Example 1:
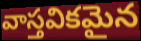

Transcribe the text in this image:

వాస్తవికమైన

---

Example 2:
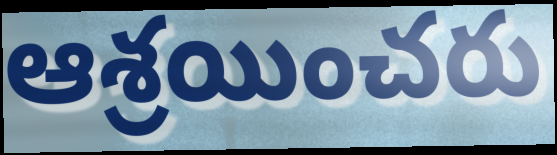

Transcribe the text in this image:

ఆశ్రయించరు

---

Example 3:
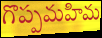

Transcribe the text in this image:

గొప్పమహిమ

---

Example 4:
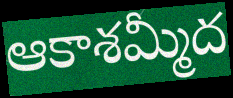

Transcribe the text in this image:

ఆకాశమ్మీద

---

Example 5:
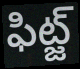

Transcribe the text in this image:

ఫిట్జ్